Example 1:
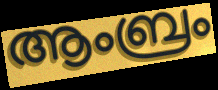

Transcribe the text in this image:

ആംബ്രം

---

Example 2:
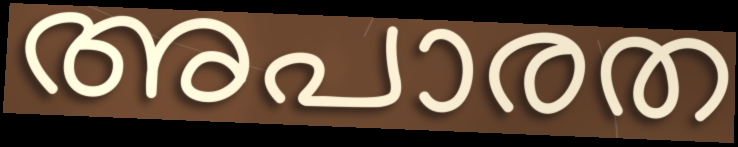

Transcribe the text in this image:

അപാരത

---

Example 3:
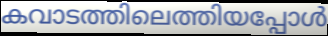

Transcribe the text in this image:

കവാടത്തിലെത്തിയപ്പോൾ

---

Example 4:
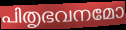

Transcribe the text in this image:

പിതൃഭവനമോ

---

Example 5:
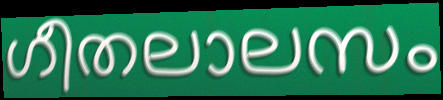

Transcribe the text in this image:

ഗീതലാലസം